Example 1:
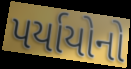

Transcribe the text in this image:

પર્યાયોનો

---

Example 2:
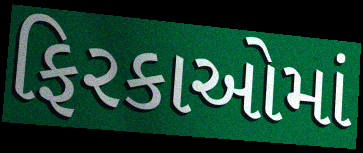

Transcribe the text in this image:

ફિરકાઓમાં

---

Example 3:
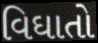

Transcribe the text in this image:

વિઘાતો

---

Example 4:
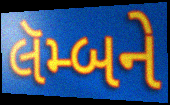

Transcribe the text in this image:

લૅમ્બને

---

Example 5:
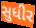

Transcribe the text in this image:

સુધીર